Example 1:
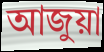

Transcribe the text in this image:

আজুয়া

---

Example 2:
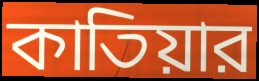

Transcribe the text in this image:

কাতিয়ার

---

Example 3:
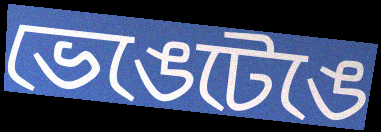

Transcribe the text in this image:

ভেঙেটেঙে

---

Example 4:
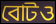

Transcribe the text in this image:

বোটও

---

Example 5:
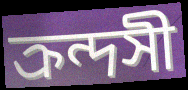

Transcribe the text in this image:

ক্রন্দসী